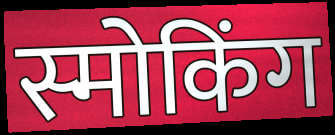
स्‍मोकिंग